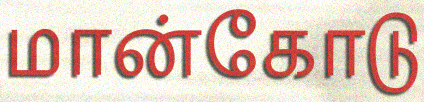
மான்கோடு